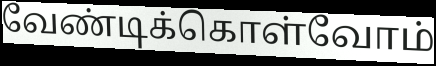
வேண்டிக்கொள்வோம்